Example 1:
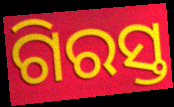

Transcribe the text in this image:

ଗିରସ୍ତ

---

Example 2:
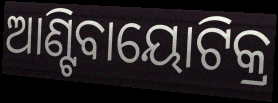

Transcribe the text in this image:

ଆଣ୍ଟିବାୟୋଟିକ୍ର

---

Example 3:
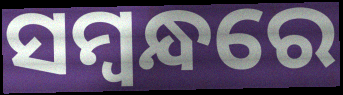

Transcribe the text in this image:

ସମ୍ୱନ୍ଧରେ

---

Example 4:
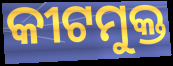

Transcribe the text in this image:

କୀଟମୁକ୍ତ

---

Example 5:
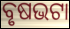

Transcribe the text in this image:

ବୃଷଭଟା